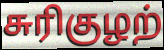
சுரிகுழற்